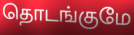
தொடங்குமே